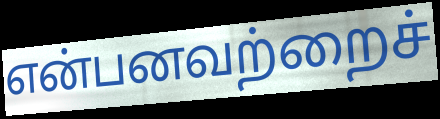
என்பனவற்றைச்